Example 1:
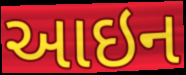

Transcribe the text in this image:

આઇન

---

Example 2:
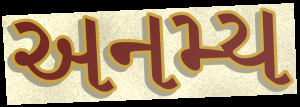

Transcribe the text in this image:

અનમ્ય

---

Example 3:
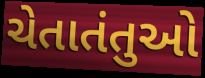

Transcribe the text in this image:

ચેતાતંતુઓ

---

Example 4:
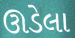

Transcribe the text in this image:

ઊડેલા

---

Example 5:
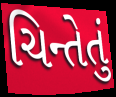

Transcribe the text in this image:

ચિન્તેતું